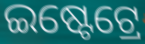
ଇଷ୍ଟେଟ୍ରେ